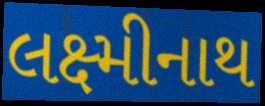
લક્ષ્મીનાથ